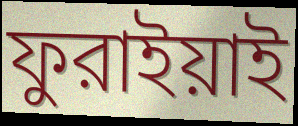
ফুরাইয়াই